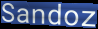
Sandoz